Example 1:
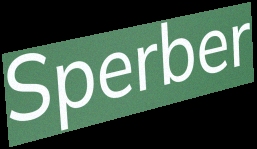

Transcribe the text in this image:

Sperber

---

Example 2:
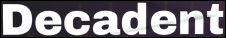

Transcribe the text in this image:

Decadent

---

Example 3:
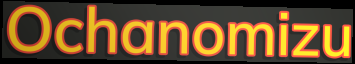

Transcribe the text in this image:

Ochanomizu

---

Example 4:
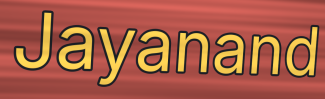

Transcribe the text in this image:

Jayanand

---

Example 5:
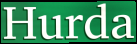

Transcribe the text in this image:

Hurda